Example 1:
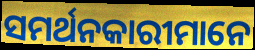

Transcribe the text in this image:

ସମର୍ଥନକାରୀମାନେ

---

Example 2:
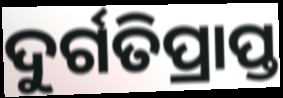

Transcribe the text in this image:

ଦୁର୍ଗତିପ୍ରାପ୍ତ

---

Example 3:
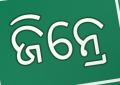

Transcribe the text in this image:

ଜିନ୍ରେ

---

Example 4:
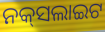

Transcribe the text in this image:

ନକ୍‌ସଲାଇଟ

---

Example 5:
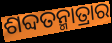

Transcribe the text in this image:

ଶବ୍ଦତନ୍ମାତ୍ରାର